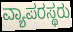
ವ್ಯಾಪರಸ್ಥರು